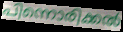
പിന്നൊരിക്കൽ